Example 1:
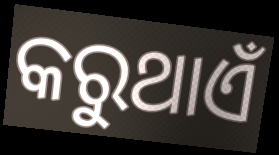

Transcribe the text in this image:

କରୁଥାଏଁ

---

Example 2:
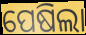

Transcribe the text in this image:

ପେଷିଲା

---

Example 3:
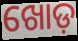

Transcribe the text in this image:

ଖୋଡ଼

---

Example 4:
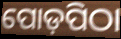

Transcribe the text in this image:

ପୋଡ଼ପିଠା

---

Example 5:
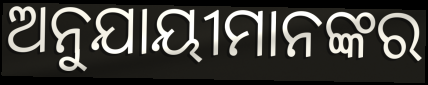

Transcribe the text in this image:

ଅନୁଯାୟୀମାନଙ୍କର